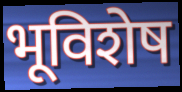
भूविशेष